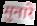
मुनारे